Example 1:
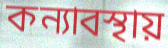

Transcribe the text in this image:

কন্যাবস্থায়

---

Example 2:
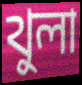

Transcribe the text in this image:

থুলা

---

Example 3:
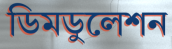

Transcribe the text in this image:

ডিমডুলেশন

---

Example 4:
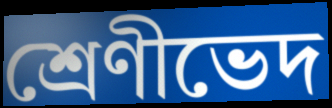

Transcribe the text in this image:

শ্রেণীভেদ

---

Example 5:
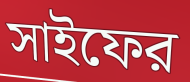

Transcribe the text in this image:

সাইফের